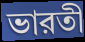
ভারতী